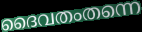
ദൈവതംതന്നെ